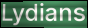
Lydians